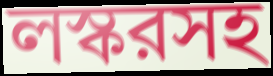
লস্করসহ